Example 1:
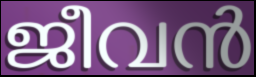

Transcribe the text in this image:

ജീവൻ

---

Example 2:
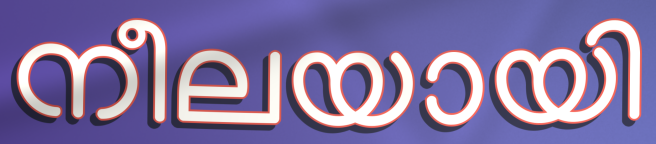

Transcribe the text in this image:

നീലയായി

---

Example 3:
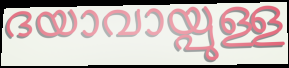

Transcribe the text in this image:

ദയാവായ്പുള്ള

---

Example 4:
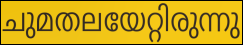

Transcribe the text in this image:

ചുമതലയേറ്റിരുന്നു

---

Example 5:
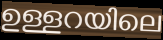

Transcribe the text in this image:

ഉള്ളറയിലെ